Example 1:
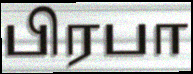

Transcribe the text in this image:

பிரபா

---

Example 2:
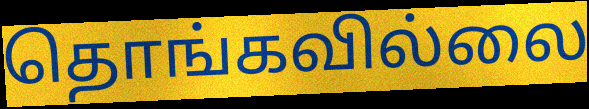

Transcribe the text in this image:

தொங்கவில்லை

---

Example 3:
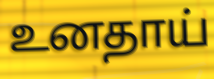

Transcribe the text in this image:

உனதாய்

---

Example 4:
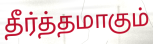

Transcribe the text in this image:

தீர்த்தமாகும்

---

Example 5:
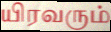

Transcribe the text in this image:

யிரவரும்